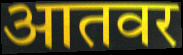
आतवर